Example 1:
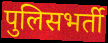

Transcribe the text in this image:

पुलिसभर्ती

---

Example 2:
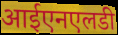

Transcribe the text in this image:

आईएनएलडी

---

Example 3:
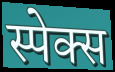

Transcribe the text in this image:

स्पेक्स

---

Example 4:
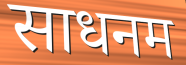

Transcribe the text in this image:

साधनम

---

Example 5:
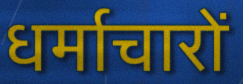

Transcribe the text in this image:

धर्माचारों